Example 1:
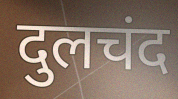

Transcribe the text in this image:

दुलचंद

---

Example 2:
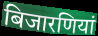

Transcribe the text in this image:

बिजारणियां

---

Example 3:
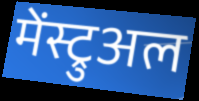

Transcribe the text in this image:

मेंस्ट्रुअल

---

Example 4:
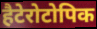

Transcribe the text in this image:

हैटेरोटोपिक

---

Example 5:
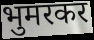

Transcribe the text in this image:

भुमरकर